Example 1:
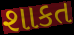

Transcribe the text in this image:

શાકત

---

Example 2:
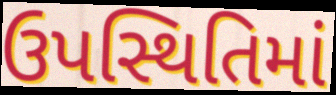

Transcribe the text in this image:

ઉપસ્થિતિમાં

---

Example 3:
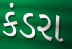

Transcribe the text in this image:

કંડરા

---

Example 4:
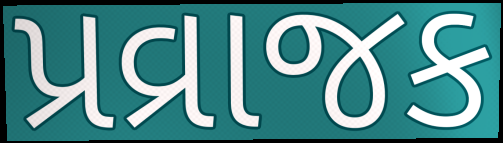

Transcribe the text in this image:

પ્રવ્રાજક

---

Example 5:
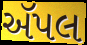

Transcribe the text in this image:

ઍપલ